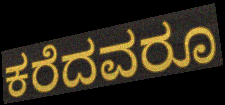
ಕರೆದವರೂ